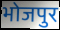
भोजपुर